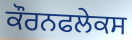
ਕੌਰਨਫਲੇਕਸ